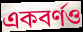
একবর্ণও